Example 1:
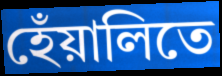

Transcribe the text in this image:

হেঁয়ালিতে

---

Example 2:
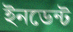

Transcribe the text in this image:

ইনডেন্ট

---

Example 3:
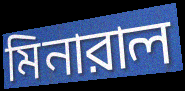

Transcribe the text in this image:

মিনারাল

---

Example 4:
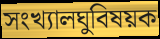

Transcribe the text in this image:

সংখ্যালঘুবিষয়ক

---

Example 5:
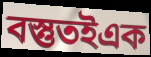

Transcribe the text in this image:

বস্তুতইএক